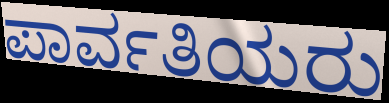
ಪಾರ್ವತಿಯರು